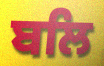
ਬਲਿ